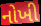
નોખી